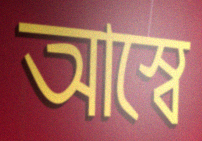
আস্বে